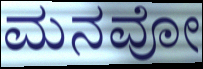
ಮನವೋ